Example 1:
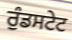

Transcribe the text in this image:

ਰੁੰਡਸਟੇਟ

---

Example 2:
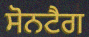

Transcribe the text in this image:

ਸੋਨਟੈਗ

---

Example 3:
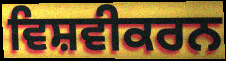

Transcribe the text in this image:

ਵਿਸ਼ਵੀਕਰਨ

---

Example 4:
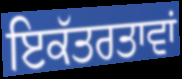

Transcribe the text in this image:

ਇਕੱਤਰਤਾਵਾਂ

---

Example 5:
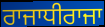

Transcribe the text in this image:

ਰਾਜਾਧੀਰਾਜਾ